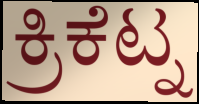
ಕ್ರಿಕೆಟ್ನ